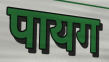
पायग